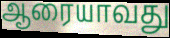
ஆரையாவது